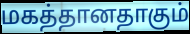
மகத்தானதாகும்